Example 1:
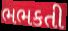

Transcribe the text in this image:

ભભકતી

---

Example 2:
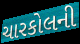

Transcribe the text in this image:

ચારકોલની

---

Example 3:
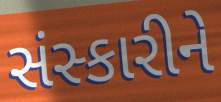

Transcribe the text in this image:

સંસ્કારીને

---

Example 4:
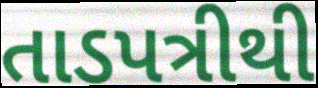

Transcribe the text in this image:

તાડપત્રીથી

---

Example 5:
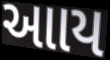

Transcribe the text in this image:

આાય